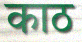
काठ